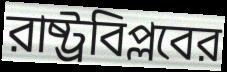
রাষ্ট্রবিপ্লবের